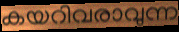
കയറിവരാവുന്ന